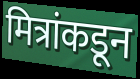
मित्रांकडून